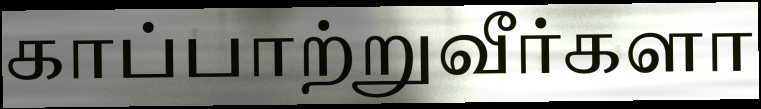
காப்பாற்றுவீர்களா